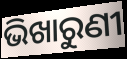
ଭିଖାରୁଣୀ